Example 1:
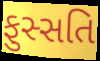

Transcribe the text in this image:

ફુસ્સતિ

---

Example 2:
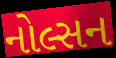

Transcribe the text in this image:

નોલ્સન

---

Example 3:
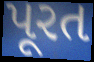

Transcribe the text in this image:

પૂરત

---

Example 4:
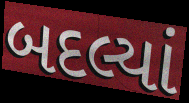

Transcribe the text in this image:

બદલ્યાં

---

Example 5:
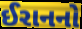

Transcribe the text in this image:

ઈરાનનો